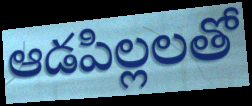
ఆడపిల్లలతో